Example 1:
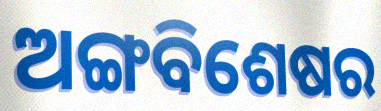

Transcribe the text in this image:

ଅଙ୍ଗବିଶେଷର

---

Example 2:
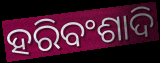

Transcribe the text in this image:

ହରିବଂଶାଦି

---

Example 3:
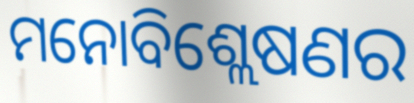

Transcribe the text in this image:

ମନୋବିଶ୍ଲେଷଣର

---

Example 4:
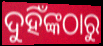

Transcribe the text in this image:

ଦୁହିଁଙ୍କଠାରୁ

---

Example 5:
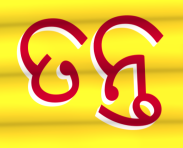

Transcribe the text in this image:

ତନ୍ତ